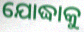
ଯୋଦ୍ଧାକୁ